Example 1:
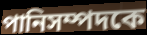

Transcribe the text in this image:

পানিসম্পদকে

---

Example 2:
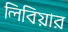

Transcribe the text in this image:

লিবিয়ার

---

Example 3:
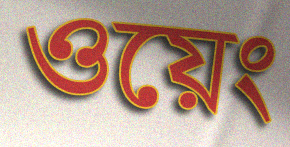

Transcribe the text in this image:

ওয়েং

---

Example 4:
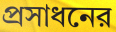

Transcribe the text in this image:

প্রসাধনের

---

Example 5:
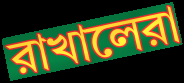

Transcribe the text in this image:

রাখালেরা